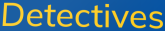
Detectives